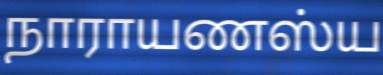
நாராயணஸ்ய